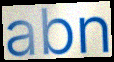
abn